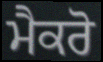
ਮੈਕਰੋ